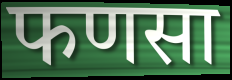
फणसा